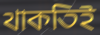
থাকতিই